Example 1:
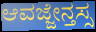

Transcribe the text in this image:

ಆವಜ್ಜೇನ್ತಸ್ಸ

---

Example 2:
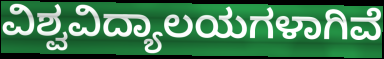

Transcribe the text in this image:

ವಿಶ್ವವಿದ್ಯಾಲಯಗಳಾಗಿವೆ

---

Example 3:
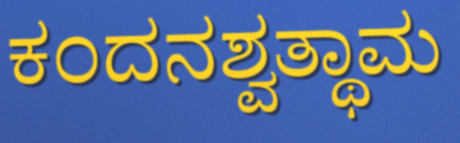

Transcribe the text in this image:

ಕಂದನಶ್ವತ್ಥಾಮ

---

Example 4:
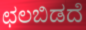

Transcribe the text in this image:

ಛಲಬಿಡದೆ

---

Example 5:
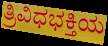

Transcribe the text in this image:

ತ್ರಿವಿಧಭಕ್ತಿಯ